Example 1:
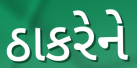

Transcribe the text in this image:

ઠાકરેને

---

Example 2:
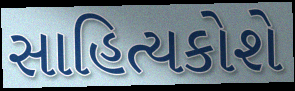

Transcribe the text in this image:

સાહિત્યકોશે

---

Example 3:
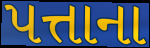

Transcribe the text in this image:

પત્તાના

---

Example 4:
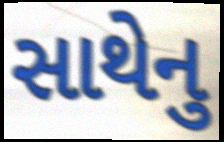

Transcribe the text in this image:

સાથેનુ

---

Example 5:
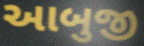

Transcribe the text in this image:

આબુજી